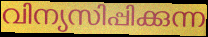
വിന്യസിപ്പിക്കുന്ന